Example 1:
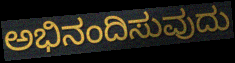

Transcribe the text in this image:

ಅಭಿನಂದಿಸುವುದು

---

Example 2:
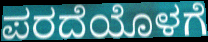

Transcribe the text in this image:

ಪರದೆಯೊಳಗೆ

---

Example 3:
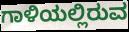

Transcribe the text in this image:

ಗಾಳಿಯಲ್ಲಿರುವ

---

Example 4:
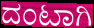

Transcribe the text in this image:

ದಂಟಾಗಿ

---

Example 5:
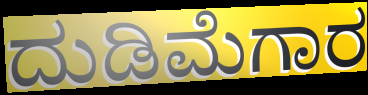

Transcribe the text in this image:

ದುಡಿಮೆಗಾರ